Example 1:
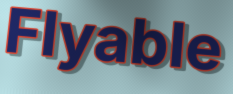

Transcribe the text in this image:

Flyable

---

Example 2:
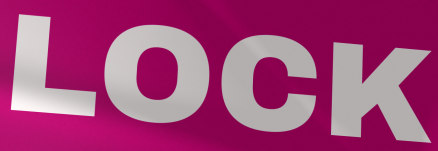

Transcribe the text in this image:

LOCK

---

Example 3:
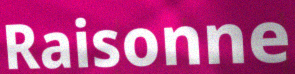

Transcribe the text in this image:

Raisonne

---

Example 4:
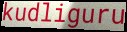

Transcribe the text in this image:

kudliguru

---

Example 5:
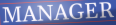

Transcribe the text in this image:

MANAGER